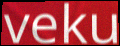
veku